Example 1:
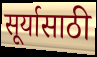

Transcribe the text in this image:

सूर्यासाठी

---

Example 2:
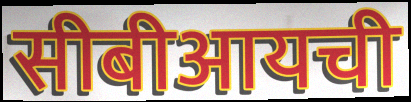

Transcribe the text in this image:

सीबीआयची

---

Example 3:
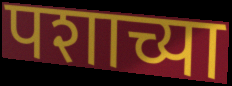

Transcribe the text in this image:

पशाच्या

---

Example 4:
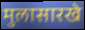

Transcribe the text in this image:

मुलासारखे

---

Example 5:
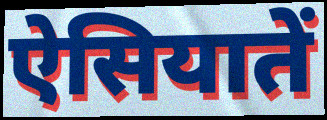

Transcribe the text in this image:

ऐसियातें